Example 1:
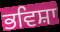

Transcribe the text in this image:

ਭਵਿਸ਼ਾ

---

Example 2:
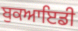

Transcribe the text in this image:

ਬੁਕਆਇਡੀ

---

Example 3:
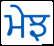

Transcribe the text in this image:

ਮੇਝ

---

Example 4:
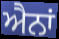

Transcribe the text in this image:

ਐਨਾਂ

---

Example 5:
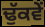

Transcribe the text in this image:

ਢੁੱਕਵੇਂ